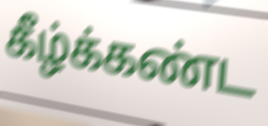
கீழ்க்கண்ட